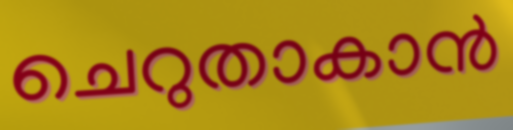
ചെറുതാകാൻ